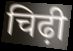
चिढ़ी